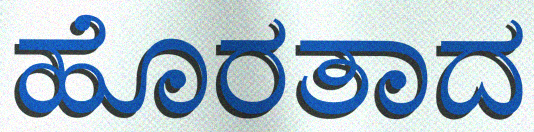
ಹೊರತಾದ